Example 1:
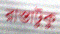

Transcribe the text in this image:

রাস্তাটুকু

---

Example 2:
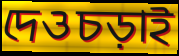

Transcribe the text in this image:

দেওচড়াই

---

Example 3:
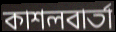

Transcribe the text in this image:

কাশলবার্তা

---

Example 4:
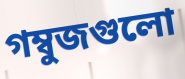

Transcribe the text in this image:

গম্বুজগুলো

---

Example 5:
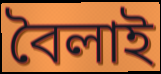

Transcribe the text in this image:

বৈলাই